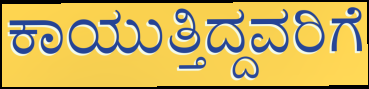
ಕಾಯುತ್ತಿದ್ದವರಿಗೆ